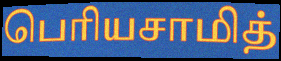
பெரியசாமித்